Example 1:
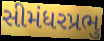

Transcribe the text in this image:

સીમંધરપ્રભુ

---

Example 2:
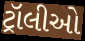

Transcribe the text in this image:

ટ્રૉલીઓ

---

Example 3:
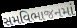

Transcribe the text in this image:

સમવિભાજનમાં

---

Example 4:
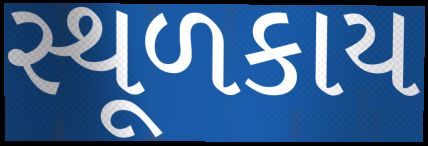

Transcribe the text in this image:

સ્થૂળકાય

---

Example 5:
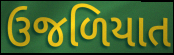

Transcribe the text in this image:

ઉજળિયાત